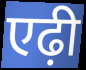
एढ़ी